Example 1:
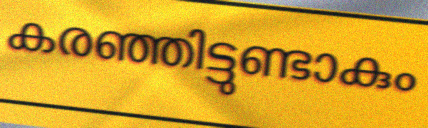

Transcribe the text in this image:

കരഞ്ഞിട്ടുണ്ടാകും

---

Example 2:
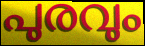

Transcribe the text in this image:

പുരവും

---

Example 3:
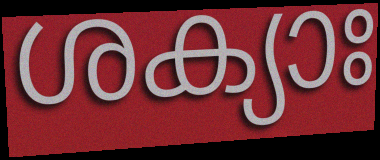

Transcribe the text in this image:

ശക്യാഃ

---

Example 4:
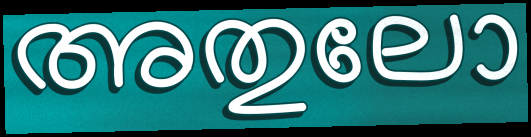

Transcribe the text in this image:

അതുലോ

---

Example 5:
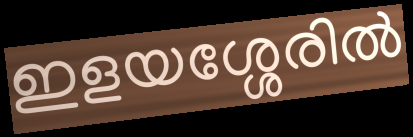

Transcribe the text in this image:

ഇളയശ്ശേരിൽ